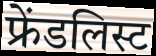
फ्रेंडलिस्ट